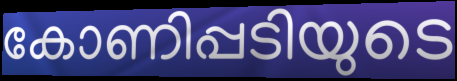
കോണിപ്പടിയുടെ